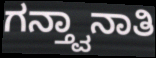
ಗನ್ತ್ವಾನಾತಿ